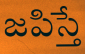
జపిస్తే